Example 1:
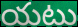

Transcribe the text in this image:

యటు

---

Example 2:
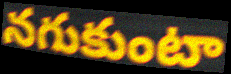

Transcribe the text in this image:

నగుకుంటా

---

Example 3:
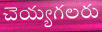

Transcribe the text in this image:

చెయ్యగలరు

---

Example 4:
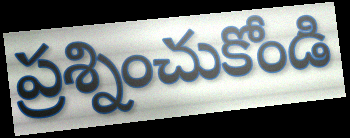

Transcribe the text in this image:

ప్రశ్నించుకోండి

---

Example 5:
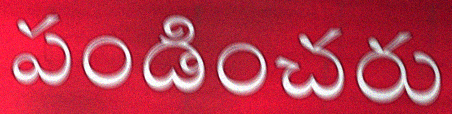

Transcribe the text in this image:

పండించరు